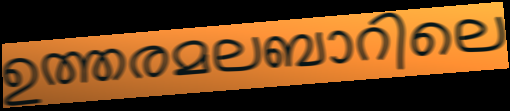
ഉത്തരമലബാറിലെ